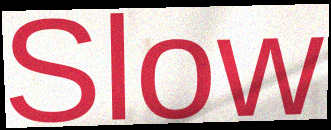
Slow